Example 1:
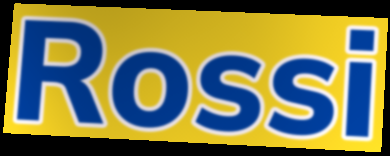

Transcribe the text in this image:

Rossi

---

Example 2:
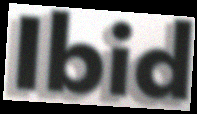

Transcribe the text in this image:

Ibid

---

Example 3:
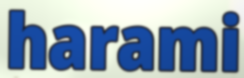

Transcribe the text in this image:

harami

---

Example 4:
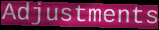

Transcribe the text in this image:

Adjustments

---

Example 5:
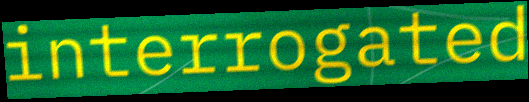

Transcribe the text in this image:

interrogated